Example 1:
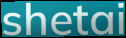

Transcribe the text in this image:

shetai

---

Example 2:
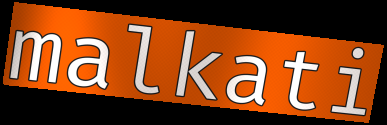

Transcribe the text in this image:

malkati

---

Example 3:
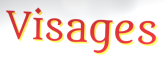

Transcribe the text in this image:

Visages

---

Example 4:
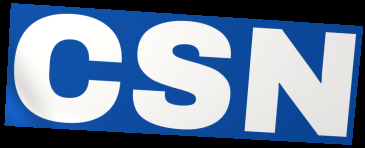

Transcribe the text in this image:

CSN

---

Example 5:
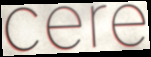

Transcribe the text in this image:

cere